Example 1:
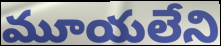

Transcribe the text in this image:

మూయలేని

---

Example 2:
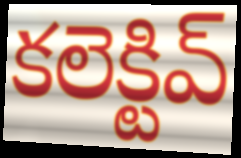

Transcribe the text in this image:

కలెక్టివ్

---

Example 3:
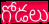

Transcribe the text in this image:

గోడలు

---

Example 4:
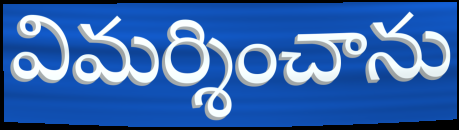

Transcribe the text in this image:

విమర్శించాను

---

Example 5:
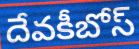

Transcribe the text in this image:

దేవకీబోస్